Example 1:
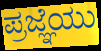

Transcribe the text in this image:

ಪ್ರಜ್ಞೆಯು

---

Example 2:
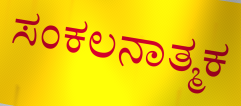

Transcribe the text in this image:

ಸಂಕಲನಾತ್ಮಕ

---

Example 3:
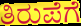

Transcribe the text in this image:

ತಿರುಪೆಗೆ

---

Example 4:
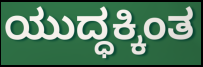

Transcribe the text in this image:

ಯುದ್ಧಕ್ಕಿಂತ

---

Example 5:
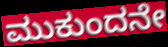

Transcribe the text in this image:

ಮುಕುಂದನೇ